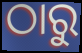
ଠାରୁ